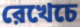
রেখেচে